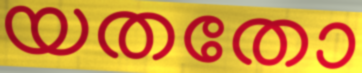
യതതോ